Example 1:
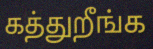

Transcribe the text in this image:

கத்துறீங்க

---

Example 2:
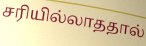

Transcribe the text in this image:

சரியில்லாததால்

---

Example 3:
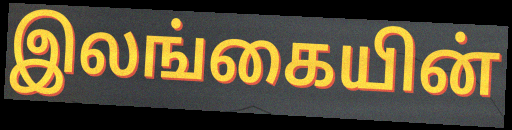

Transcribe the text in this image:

இலங்கையின்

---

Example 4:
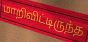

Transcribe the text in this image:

மாறிவிட்டிருந்த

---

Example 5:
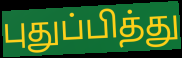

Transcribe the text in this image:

புதுப்பித்து